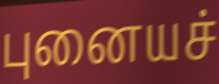
புனையச்